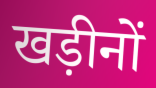
खड़ीनों